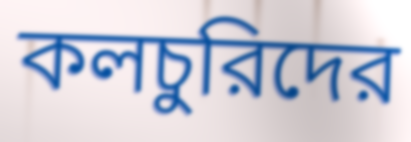
কলচুরিদের